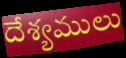
దేశ్యములు